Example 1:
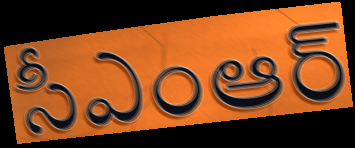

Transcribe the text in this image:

సీఎంఆర్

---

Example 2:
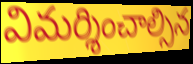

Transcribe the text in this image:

విమర్శించాల్సిన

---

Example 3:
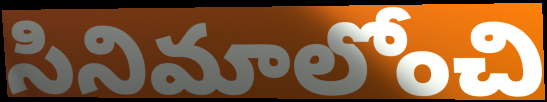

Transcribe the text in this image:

సినిమాలోంచి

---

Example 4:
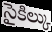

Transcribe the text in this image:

సైకిల్కు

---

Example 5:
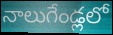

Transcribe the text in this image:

నాలుగేండ్లలో